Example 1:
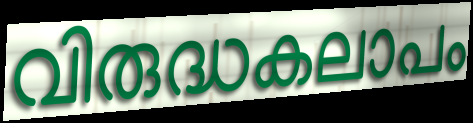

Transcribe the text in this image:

വിരുദ്ധകലാപം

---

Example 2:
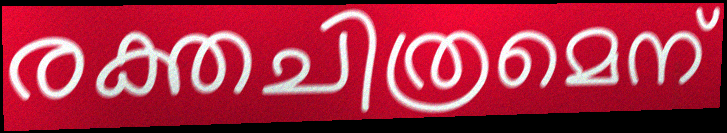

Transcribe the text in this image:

രക്തചിത്രമെന്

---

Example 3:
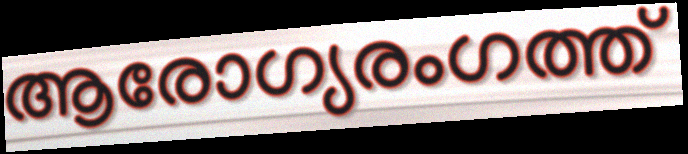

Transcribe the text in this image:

ആരോഗ്യരംഗത്ത്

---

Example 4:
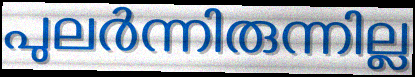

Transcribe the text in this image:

പുലർന്നിരുന്നില്ല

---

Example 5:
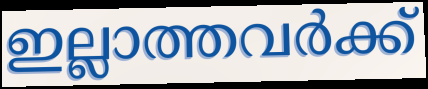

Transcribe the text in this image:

ഇല്ലാത്തവർക്ക്